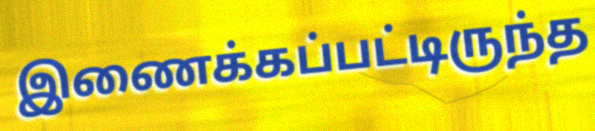
இணைக்கப்பட்டிருந்த